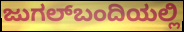
ಜುಗಲ್‌ಬಂದಿಯಲ್ಲಿ